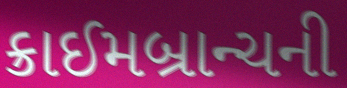
ક્રાઈમબ્રાન્ચની